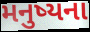
મનુષ્યના